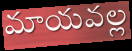
మాయవల్ల